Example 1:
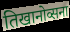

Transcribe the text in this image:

तिखानोव्सना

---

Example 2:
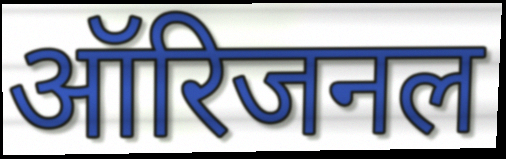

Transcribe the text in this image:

ऑरिजनल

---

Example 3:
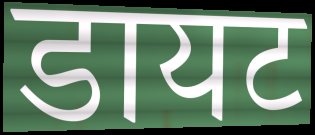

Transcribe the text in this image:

डायट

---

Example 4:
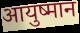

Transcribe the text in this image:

आयुष्मान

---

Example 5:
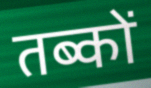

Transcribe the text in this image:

तब्कों